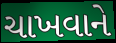
ચાખવાને